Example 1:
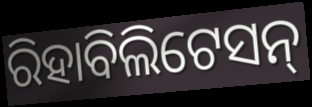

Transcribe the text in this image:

ରିହାବିଲିଟେସନ୍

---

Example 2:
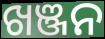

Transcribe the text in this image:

ଖଞ୍ଜନ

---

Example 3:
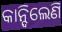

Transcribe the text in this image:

କାନ୍ଦିଲେଣି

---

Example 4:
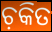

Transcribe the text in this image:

ଚ଼କିତ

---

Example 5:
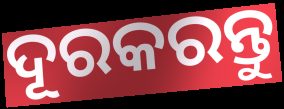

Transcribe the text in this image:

ଦୂରକରନ୍ତୁ